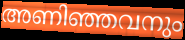
അണിഞ്ഞവനും